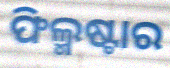
ଫିଲ୍ମଷ୍ଟାର